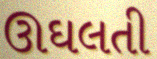
ઊઘલતી